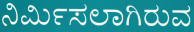
ನಿರ್ಮಿಸಲಾಗಿರುವ